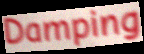
Damping